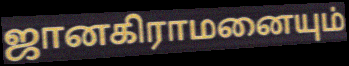
ஜானகிராமனையும்